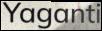
Yaganti